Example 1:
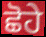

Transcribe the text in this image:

ਛੋਹੇ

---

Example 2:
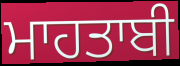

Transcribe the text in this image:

ਮਾਹਤਾਬੀ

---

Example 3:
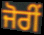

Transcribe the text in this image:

ਜੋਰੀਂ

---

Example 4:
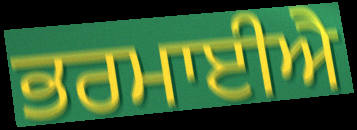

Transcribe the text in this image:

ਭਰਮਾਈਐ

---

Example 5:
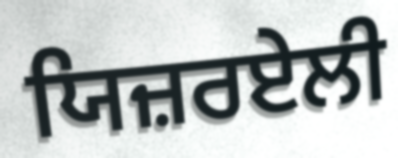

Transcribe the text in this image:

ਯਿਜ਼ਰਏਲੀ